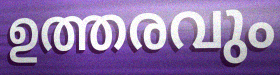
ഉത്തരവും